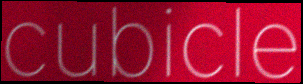
cubicle